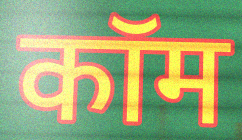
कॉम